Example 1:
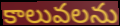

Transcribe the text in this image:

కాలువలను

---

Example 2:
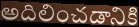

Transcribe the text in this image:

అదిలించడానికి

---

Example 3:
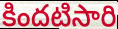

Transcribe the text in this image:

కిందటిసారి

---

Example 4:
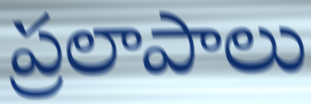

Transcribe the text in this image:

ప్రలాపాలు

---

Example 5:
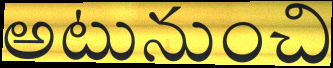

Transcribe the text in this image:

అటునుంచి